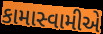
કામાસ્વામીએ